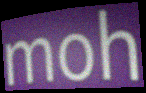
moh